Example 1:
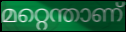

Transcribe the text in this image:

മറ്റെന്താണ്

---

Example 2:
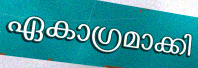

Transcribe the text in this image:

ഏകാഗ്രമാക്കി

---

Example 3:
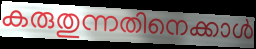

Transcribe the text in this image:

കരുതുന്നതിനെക്കാൾ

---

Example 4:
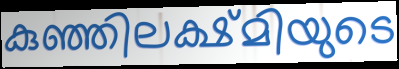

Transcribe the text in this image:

കുഞ്ഞിലക്ഷ്മിയുടെ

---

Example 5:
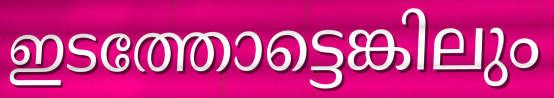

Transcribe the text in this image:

ഇടത്തോട്ടെങ്കിലും